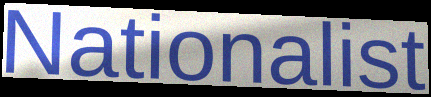
Nationalist